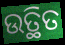
ଉତ୍ଥିତ